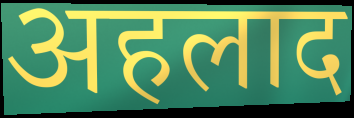
अहलाद